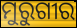
ମୁରୁଗୀର